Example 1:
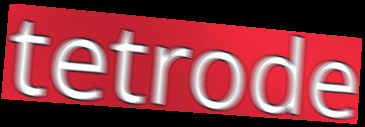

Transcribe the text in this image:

tetrode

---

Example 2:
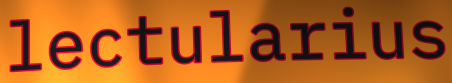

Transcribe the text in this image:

lectularius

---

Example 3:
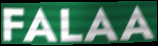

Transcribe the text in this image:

FALAA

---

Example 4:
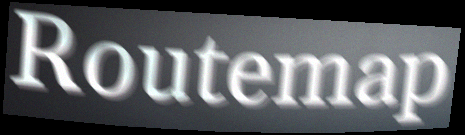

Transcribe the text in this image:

Routemap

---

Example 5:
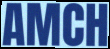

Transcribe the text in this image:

AMCH